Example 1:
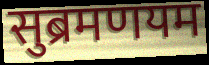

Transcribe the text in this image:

सुब्रमणयम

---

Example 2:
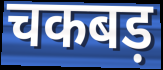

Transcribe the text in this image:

चकबड़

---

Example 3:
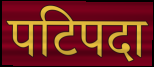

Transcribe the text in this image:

पटिपदा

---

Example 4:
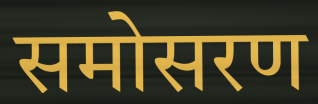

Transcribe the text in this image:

समोसरण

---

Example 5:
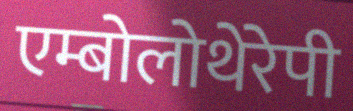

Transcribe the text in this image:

एम्बोलोथेरेपी